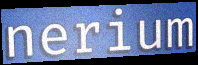
nerium